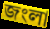
জংলা